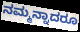
ನಮ್ಮನ್ನಾದರೂ